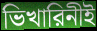
ভিখারিনীই